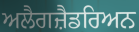
ਅਲੈਗਜ਼ੈਡਰਿਅਨ